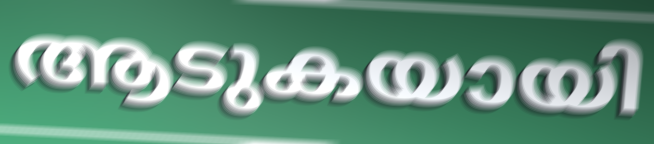
ആടുകയായി